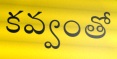
కవ్వంతో